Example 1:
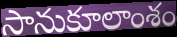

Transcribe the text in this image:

సానుకూలాంశం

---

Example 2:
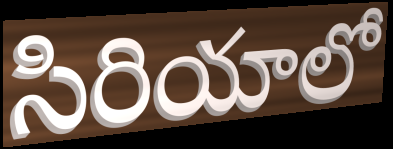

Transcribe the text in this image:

సిరియాలో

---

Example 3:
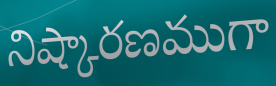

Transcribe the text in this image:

నిష్కారణముగా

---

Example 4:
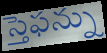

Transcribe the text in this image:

స్తెఫన్ను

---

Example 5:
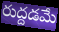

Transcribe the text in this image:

రుద్దడమే